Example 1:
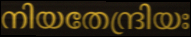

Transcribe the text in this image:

നിയതേന്ദ്രിയഃ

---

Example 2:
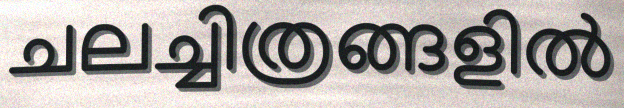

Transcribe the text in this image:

ചലച്ചിത്രങ്ങളിൽ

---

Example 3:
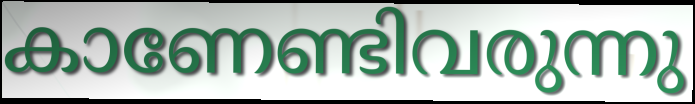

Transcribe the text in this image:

കാണേണ്ടിവരുന്നു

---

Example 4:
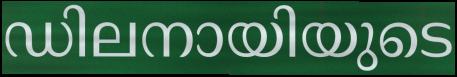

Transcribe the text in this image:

ഡിലനായിയുടെ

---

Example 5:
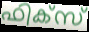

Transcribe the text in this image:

ഫിക്സ്